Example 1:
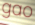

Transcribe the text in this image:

gao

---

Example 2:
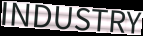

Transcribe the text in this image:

INDUSTRY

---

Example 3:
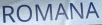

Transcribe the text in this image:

ROMANA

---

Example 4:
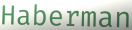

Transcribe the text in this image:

Haberman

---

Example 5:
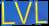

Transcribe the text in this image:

LVL